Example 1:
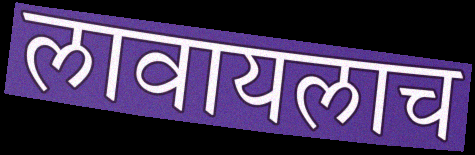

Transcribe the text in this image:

लावायलाच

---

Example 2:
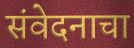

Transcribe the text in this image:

संवेदनाचा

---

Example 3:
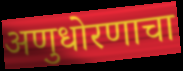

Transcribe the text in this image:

अणुधोरणाचा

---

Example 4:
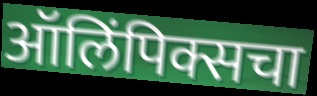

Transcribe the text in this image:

ऑलिंपिक्सचा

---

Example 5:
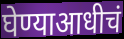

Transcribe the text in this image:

घेण्याआधीचं